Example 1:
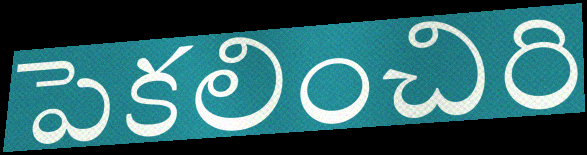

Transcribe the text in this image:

పెకలించిరి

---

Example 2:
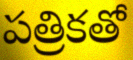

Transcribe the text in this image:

పత్రికతో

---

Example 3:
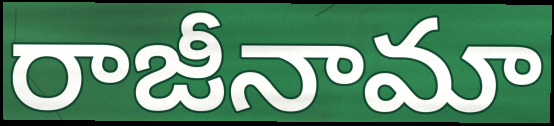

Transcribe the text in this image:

రాజీనామా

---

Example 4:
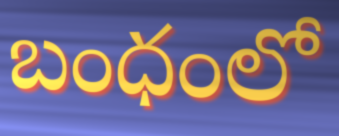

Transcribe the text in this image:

బంధంలో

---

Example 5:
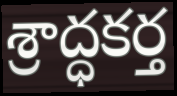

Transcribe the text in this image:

శ్రాద్ధకర్త